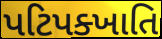
પટિપક્ખાતિ